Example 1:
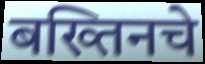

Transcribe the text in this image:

बख्तिनचे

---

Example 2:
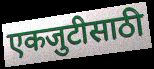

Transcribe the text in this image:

एकजुटीसाठी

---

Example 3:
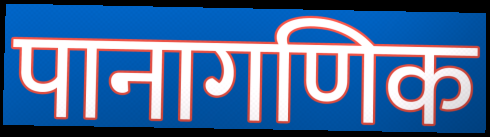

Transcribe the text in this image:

पानागणिक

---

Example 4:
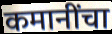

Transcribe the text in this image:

कमानींचा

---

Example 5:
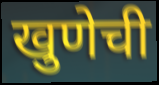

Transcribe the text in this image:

खुणेची